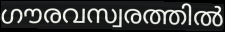
ഗൗരവസ്വരത്തിൽ